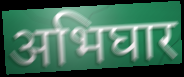
अभिघार